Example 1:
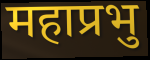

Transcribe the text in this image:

महाप्रभु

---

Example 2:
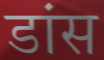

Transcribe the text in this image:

डांस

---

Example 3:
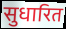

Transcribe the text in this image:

सुधारित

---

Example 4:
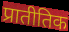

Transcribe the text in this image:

प्रातीतिक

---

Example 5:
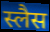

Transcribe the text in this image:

स्लैस